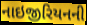
નાઇજીરિયનની